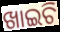
ଖାଇଚି